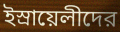
ইস্রায়েলীদের